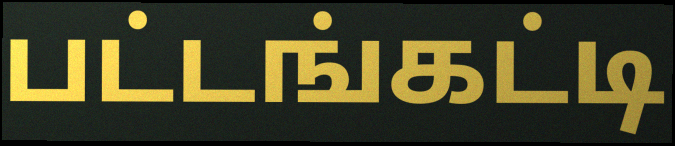
பட்டங்கட்டி